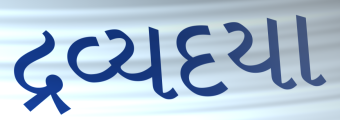
દ્રવ્યદયા